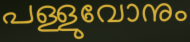
പള്ളുവോനും